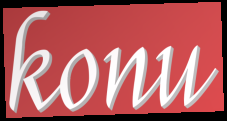
konu